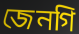
জেনগি